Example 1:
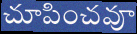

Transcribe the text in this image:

చూపించవూ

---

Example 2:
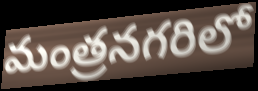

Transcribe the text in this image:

మంత్రనగరిలో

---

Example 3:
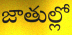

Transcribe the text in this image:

జాతుల్లో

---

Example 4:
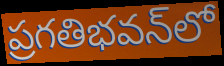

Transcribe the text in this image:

ప్రగతిభవన్‌లో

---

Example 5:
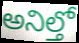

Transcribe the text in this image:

అనిల్తో